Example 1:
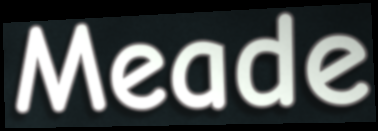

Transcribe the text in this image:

Meade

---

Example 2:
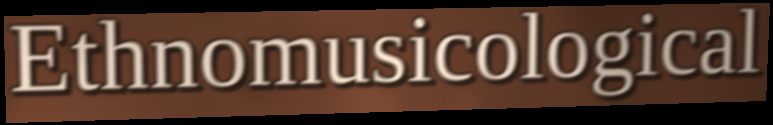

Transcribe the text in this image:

Ethnomusicological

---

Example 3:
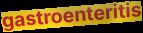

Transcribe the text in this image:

gastroenteritis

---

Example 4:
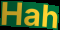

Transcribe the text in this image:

Hah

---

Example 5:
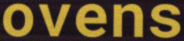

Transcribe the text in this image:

ovens